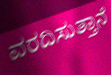
ವರದಿಸುತ್ತಾನೆ